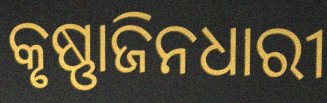
କୃଷ୍ଣାଜିନଧାରୀ